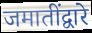
जमातींद्वारे